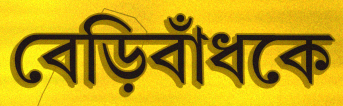
বেড়িবাঁধকে